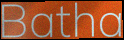
Batha